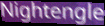
Nightengle